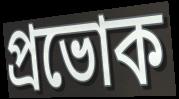
প্রভোক